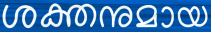
ശക്തനുമായ